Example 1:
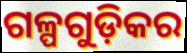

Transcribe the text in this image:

ଗଳ୍ପଗୁଡ଼ିକର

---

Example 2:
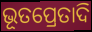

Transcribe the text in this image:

ଭୂତପ୍ରେତାଦି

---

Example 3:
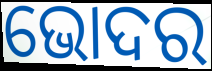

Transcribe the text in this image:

ଭୋଦର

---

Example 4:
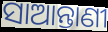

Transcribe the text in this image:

ସାଆନ୍ତାଣୀ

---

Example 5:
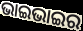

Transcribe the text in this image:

ଭାଇଭାଇର